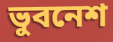
ভুবনেশ